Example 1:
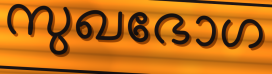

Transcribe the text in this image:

സുഖഭോഗ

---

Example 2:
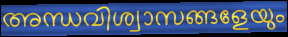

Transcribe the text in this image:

അന്ധവിശ്വാസങ്ങളേയും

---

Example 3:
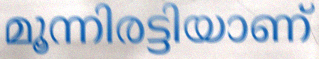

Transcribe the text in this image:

മൂന്നിരട്ടിയാണ്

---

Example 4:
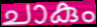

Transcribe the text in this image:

ചാകും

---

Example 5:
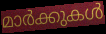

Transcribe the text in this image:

മാർക്കുകൾ